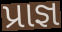
પ્રાજ્ઞ